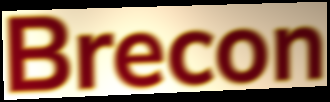
Brecon